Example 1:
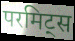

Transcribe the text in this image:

परमिट्स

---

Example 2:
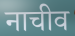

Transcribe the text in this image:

नाचीव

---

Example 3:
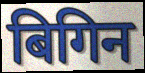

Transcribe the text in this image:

बिगिन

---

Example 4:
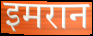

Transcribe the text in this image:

इमरान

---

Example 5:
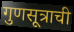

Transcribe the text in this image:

गुणसूत्राची